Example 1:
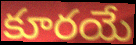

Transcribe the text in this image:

కూరయే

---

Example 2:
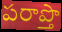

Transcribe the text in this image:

పరాప్తొ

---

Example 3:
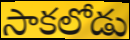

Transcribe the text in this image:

సాకలోడు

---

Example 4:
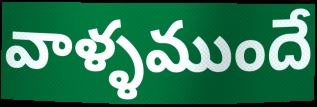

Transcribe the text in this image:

వాళ్ళముందే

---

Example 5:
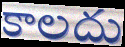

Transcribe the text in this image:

కాలదు